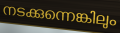
നടക്കുന്നെങ്കിലും